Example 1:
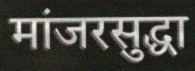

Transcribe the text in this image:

मांजरसुद्धा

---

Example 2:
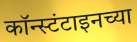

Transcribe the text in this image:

कॉन्स्टंटाइनच्या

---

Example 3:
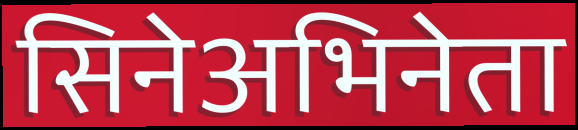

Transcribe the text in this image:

सिनेअभिनेता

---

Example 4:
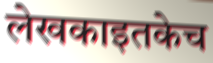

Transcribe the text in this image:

लेखकाइतकेच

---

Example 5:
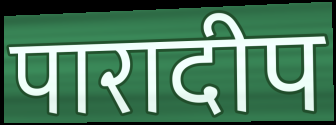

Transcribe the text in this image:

पारादीप